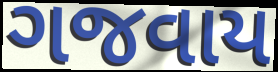
ગજવાય